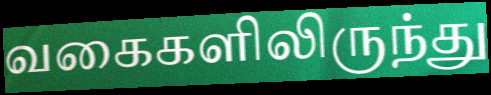
வகைகளிலிருந்து